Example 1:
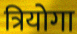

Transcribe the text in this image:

त्रियोगा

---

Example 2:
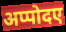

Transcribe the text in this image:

अप्पोदए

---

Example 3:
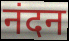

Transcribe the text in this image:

नंदन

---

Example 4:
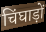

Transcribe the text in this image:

चिंघाड़ों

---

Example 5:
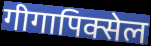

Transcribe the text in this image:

गीगापिक्सेल